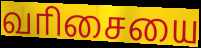
வரிசையை